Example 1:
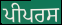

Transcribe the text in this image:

ਪੀਪਰਸ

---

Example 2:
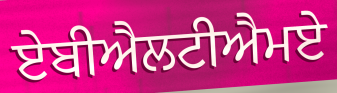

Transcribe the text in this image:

ਏਬੀਐਲਟੀਐਮਏ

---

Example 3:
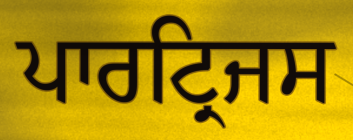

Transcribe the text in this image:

ਪਾਰਟ੍ਰਿਜਸ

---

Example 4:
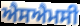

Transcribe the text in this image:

ਐਸਐਮਸੀ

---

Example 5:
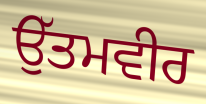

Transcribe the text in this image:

ਉੱਤਮਵੀਰ